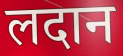
लदान